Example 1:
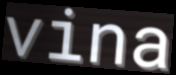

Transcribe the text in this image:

vina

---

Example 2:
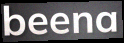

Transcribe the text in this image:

beena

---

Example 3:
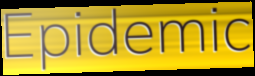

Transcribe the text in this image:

Epidemic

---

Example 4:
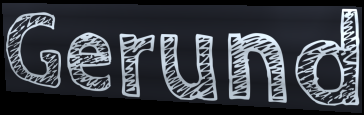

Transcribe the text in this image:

Gerund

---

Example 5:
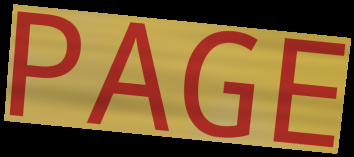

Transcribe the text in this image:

PAGE